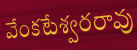
వేంకటేశ్వరరావు